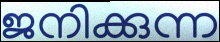
ജനിക്കുന്ന